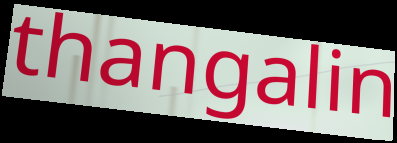
thangalin